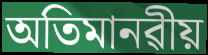
অতিমানৱীয়